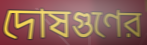
দোষগুণের